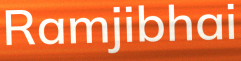
Ramjibhai